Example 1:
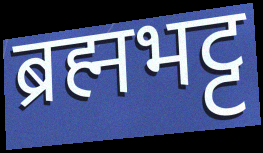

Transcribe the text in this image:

ब्रह्मभट्ट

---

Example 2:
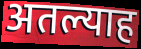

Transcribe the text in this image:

अतल्याह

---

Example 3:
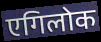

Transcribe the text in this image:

एगिलोक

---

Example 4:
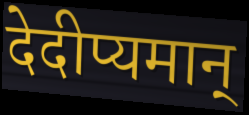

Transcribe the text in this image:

देदीप्यमान्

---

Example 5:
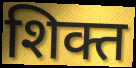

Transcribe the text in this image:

शिक्त